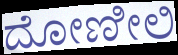
ದೋಣೀಲಿ